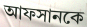
আফসানকে